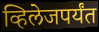
व्हिलेजपर्यंत